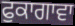
ਫੁਕਾਗਾਵਾ